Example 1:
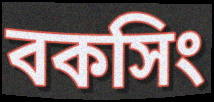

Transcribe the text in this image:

বকসিং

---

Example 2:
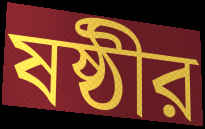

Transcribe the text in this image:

ষষ্ঠীর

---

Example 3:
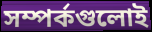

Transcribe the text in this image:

সম্পর্কগুলোই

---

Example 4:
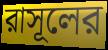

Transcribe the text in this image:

রাসূলের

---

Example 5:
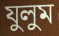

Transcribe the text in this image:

যুলুম